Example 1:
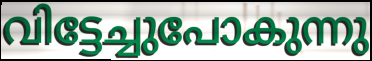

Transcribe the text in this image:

വിട്ടേച്ചുപോകുന്നു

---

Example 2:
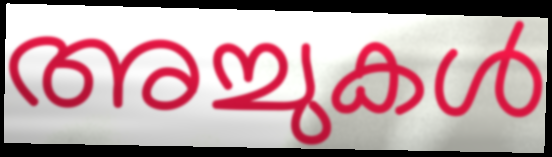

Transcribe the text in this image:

അച്ചുകൾ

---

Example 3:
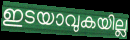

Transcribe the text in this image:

ഇടയാവുകയില്ല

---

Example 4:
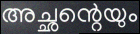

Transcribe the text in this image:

അച്ഛന്റെയും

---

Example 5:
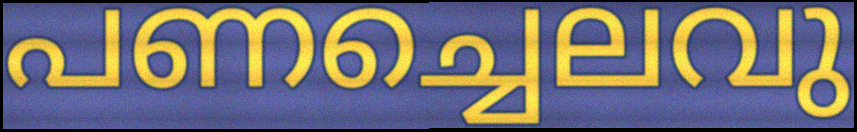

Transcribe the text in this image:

പണച്ചെലവു